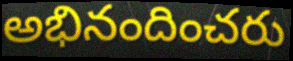
అభినందించరు